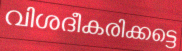
വിശദീകരിക്കട്ടെ